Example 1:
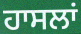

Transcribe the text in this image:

ਹਾਸਲਾਂ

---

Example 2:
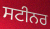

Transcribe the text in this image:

ਸਟੀਨਰ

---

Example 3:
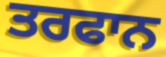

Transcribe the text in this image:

ਤਰਫਾਨ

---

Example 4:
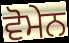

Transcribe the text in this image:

ਵੋਮੇਨ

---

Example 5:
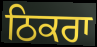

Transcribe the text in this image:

ਠਿਕਰਾ